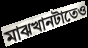
মাঝখানটাতেও